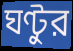
ঘণ্টুর